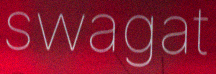
swagat